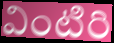
వింటిరి